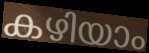
കഴിയാം